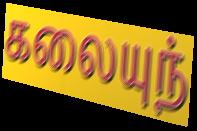
கலையுந்